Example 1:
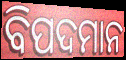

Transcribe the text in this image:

ବିପଦମାନ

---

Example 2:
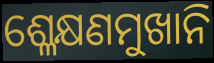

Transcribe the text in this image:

ଶ୍ଳେକ୍ଷଣମୁଖାନି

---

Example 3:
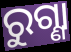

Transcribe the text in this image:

ରୁଗ୍ଣା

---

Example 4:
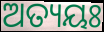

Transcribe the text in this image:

ଅତ୍ୟୟଃ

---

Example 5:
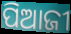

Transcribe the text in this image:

ପିଆଜୀ